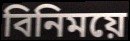
বিনিময়ে